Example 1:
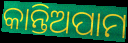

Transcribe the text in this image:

କାନ୍ତିଅପାମ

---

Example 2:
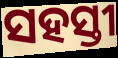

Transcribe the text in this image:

ସହସ୍ତୀ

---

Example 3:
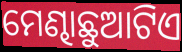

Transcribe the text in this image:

ମେଣ୍ଢାଛୁଆଟିଏ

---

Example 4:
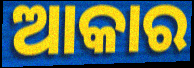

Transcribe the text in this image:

ଆକାର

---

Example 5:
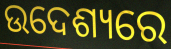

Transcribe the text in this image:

ଉଦେଶ୍ୟରେ